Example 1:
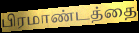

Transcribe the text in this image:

பிரமாண்டத்தை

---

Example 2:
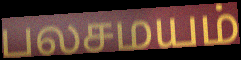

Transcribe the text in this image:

பலசமயம்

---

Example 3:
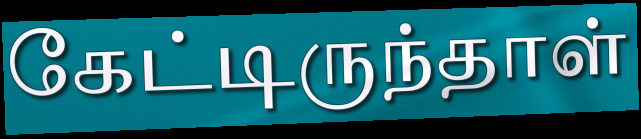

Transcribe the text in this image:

கேட்டிருந்தாள்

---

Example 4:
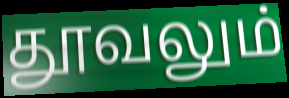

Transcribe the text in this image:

தூவலும்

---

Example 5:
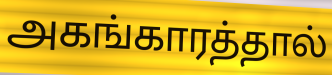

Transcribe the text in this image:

அகங்காரத்தால்